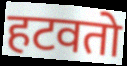
हटवतो